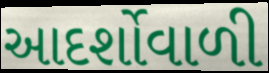
આદર્શોવાળી